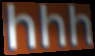
hhh